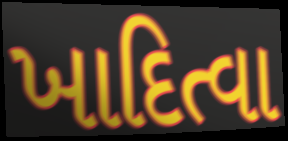
ખાદિત્વા